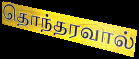
தொந்தரவால்